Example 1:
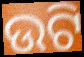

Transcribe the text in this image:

ଉଟି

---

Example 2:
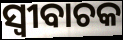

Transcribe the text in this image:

ସ୍ବୀବାଚକ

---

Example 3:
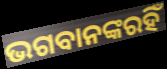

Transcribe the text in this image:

ଭଗବାନଙ୍କରହିଁ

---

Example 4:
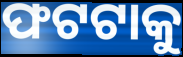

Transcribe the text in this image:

ଫଟଟାକୁ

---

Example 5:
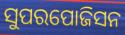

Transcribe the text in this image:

ସୁପରପୋଜିସନ